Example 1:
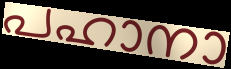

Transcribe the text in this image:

പഹാനാ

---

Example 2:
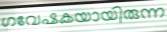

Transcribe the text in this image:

ഗവേഷകയായിരുന്ന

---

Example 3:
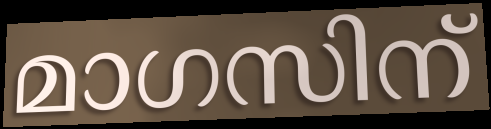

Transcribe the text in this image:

മാഗസിന്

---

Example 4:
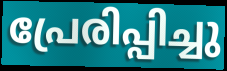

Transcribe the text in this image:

പ്രേരിപ്പിച്ചു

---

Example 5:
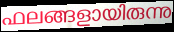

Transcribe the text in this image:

ഫലങ്ങളായിരുന്നു